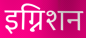
इग्निशन